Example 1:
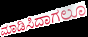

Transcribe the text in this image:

ಮಾಡಿಸಿದಾಗಲೂ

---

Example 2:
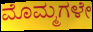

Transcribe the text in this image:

ಮೊಮ್ಮಗಳೇ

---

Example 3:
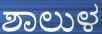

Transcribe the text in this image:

ಶಾಲುಳ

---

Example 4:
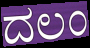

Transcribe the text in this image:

ದಲಂ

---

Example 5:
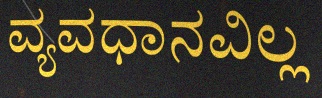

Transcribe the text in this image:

ವ್ಯವಧಾನವಿಲ್ಲ